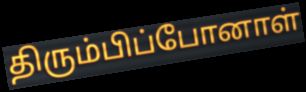
திரும்பிப்போனாள்